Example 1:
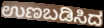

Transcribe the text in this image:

ಉಣಬಡಿಸಿದ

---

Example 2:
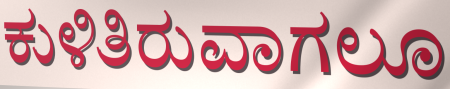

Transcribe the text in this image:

ಕುಳಿತಿರುವಾಗಲೂ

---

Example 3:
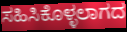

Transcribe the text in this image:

ಸಹಿಸಿಕೊಳ್ಳಲಾಗದ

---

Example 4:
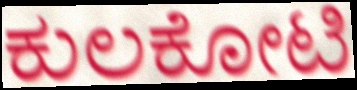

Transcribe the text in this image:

ಕುಲಕೋಟಿ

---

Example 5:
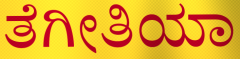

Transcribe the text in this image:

ತೆಗೀತಿಯಾ